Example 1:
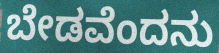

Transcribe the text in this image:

ಬೇಡವೆಂದನು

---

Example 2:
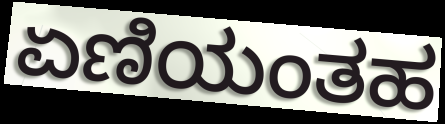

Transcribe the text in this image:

ಏಣಿಯಂತಹ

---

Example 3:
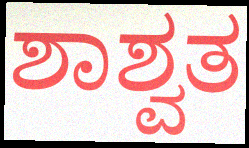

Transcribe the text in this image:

ಶಾಶ್ವತ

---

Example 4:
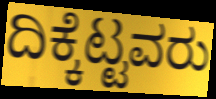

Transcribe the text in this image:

ದಿಕ್ಕೆಟ್ಟವರು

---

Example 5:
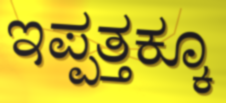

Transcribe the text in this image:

ಇಪ್ಪತ್ತಕ್ಕೂ